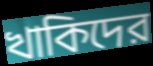
খাকিদের